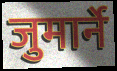
जुमार्ने